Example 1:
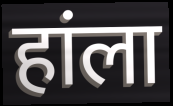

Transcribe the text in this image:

हांला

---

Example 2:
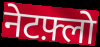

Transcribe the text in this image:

नेटफ़्लो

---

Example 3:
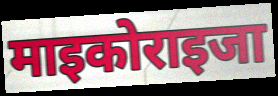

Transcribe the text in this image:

माइकोराइजा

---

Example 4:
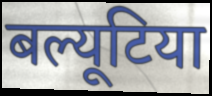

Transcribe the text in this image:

बल्यूटिया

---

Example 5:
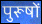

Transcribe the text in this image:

पुरूषों